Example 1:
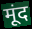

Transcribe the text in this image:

मूंद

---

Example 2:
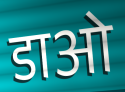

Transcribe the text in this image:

डाओ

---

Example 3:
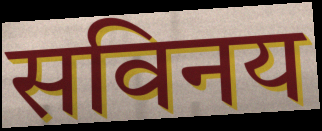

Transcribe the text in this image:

सविनय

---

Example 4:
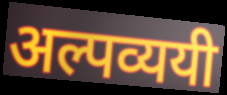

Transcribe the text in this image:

अल्पव्ययी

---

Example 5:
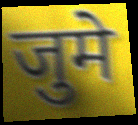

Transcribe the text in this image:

जुमे